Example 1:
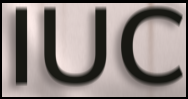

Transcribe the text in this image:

IUC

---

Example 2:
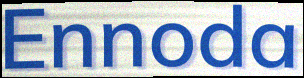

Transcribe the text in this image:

Ennoda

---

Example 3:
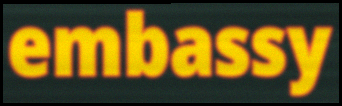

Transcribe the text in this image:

embassy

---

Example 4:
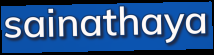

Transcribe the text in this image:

sainathaya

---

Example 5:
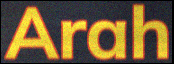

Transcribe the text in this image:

Arah